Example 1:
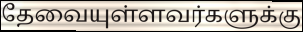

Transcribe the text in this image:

தேவையுள்ளவர்களுக்கு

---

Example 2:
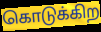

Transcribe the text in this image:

கொடுக்கிற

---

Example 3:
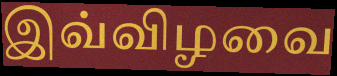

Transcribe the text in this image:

இவ்விழவை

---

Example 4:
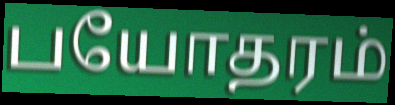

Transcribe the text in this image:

பயோதரம்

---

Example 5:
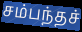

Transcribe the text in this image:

சம்பந்தச்